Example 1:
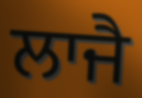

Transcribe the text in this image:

ਲਾਜੈ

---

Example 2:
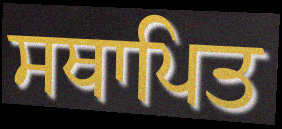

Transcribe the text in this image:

ਸਥਾਪਿਤ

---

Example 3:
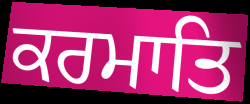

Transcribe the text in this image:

ਕਰਮਾਤਿ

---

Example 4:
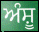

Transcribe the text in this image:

ਅੰਸ਼ੂ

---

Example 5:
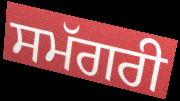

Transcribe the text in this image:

ਸਮੱਗਰੀ